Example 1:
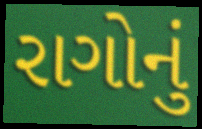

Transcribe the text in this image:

રાગોનું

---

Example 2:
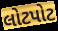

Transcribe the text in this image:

લોટપોટ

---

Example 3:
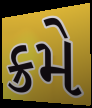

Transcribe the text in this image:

ક્રમે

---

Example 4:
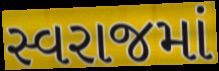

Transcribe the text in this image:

સ્વરાજમાં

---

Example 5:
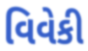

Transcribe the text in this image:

વિવેકી